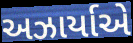
અઝાર્યાએ